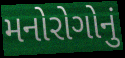
મનોરોગોનું